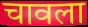
चावला